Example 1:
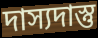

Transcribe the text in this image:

দাস্যদাস্তু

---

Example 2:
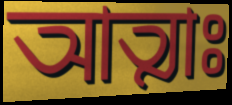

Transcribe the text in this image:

আত্মাঃ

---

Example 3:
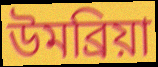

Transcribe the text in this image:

উমব্রিয়া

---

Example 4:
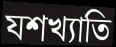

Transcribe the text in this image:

যশখ্যাতি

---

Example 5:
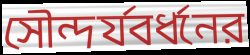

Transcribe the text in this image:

সৌন্দর্যবর্ধনের